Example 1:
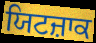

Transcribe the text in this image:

ਯਿਟਜ਼ਾਕ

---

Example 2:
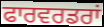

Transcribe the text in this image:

ਫਾਰਵਰਡਰਾਂ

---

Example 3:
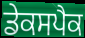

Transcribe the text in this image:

ਡੇਕਸਪੈਕ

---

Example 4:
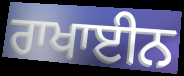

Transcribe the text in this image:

ਰਾਖਾਈਨ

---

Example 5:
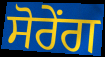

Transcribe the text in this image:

ਸੋਰੇਂਗ